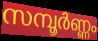
സമ്പൂർണ്ണം